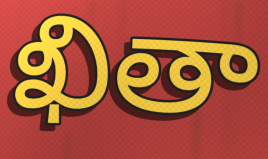
ఖితా